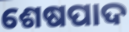
ଶେଷପାଦ